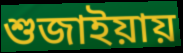
শুজাইয়ায়